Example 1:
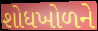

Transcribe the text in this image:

શોધખોળને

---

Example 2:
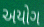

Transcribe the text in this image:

અયોગ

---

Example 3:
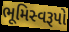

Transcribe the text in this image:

ભૂમિસ્વરૂપો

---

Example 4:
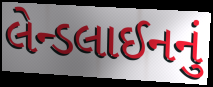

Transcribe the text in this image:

લેન્ડલાઈનનું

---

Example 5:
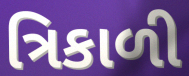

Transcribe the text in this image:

ત્રિકાળી